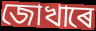
জোখাৰে